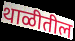
थाळीतील